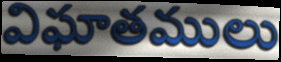
విఘాతములు